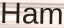
Ham